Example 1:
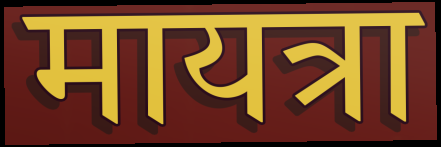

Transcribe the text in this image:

मायत्रा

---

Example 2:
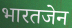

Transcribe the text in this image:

भारतजेन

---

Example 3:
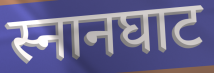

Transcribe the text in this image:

स्नानघाट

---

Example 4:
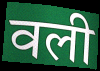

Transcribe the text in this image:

वली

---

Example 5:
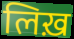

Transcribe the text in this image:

लिख़